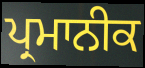
ਪ੍ਰਮਾਨੀਕ